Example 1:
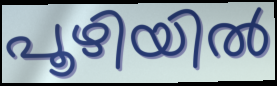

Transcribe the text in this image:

പൂഴിയിൽ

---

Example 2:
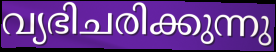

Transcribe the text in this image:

വ്യഭിചരിക്കുന്നു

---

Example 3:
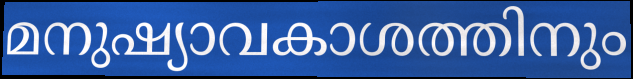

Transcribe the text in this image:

മനുഷ്യാവകാശത്തിനും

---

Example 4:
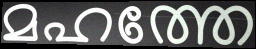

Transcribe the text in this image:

മഹത്തേ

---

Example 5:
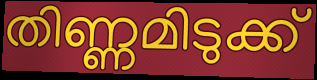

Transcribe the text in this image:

തിണ്ണമിടുക്ക്